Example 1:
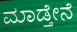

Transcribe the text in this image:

ಮಾಡ್ತೇನೆ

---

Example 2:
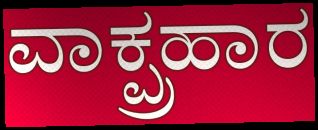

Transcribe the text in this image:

ವಾಕ್ಪ್ರಹಾರ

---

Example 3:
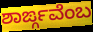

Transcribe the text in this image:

ಶಾರ್ಙ್ಗವೆಂಬ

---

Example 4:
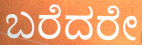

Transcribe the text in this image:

ಬರೆದರೇ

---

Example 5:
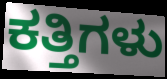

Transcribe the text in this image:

ಕತ್ತಿಗಳು